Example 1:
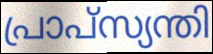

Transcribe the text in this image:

പ്രാപ്സ്യന്തി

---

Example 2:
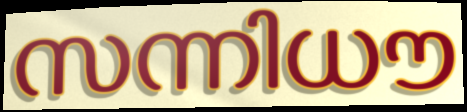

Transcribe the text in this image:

സന്നിധൗ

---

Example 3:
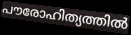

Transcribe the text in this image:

പൗരോഹിത്യത്തിൽ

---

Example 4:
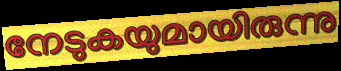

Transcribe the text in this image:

നേടുകയുമായിരുന്നു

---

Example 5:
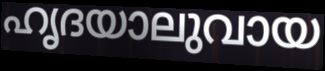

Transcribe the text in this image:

ഹൃദയാലുവായ